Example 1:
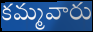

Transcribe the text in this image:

కమ్మవారు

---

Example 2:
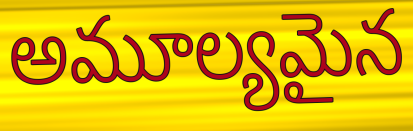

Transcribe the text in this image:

అమూల్యమైన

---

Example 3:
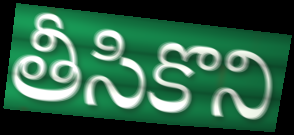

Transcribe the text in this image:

తీసికొని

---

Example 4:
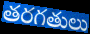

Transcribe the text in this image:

తరగతులు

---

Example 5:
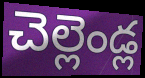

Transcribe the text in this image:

చెల్లెండ్ల